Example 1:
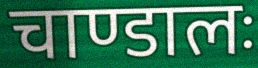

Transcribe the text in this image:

चाण्डालः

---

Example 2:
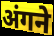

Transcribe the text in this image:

अंगने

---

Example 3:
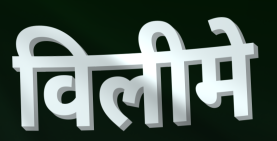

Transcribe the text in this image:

विलीमे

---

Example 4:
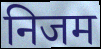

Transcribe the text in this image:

निजम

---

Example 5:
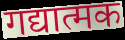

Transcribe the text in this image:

गद्यात्मक